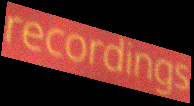
recordings